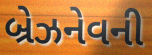
બ્રેઝનેવની